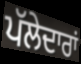
ਪੱਲੇਦਾਰਾਂ